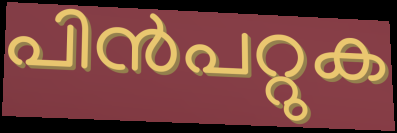
പിൻപറ്റുക